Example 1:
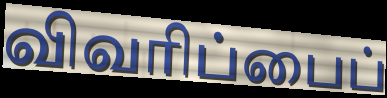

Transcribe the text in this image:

விவரிப்பைப்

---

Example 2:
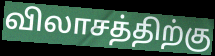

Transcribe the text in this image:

விலாசத்திற்கு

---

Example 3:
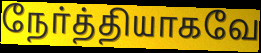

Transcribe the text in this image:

நேர்த்தியாகவே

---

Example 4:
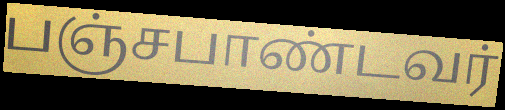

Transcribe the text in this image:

பஞ்சபாண்டவர்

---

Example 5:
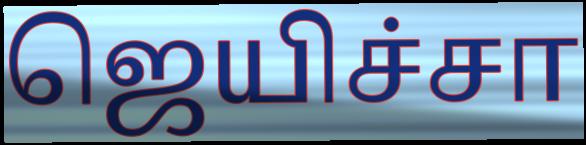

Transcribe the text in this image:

ஜெயிச்சா